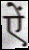
ऐं